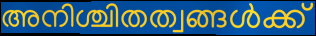
അനിശ്ചിതത്വങ്ങൾക്ക്